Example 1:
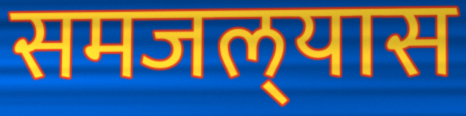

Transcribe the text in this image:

समजल्यास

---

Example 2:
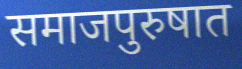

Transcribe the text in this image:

समाजपुरुषात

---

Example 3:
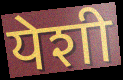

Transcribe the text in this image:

येशी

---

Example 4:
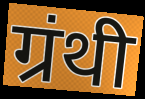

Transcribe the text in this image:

ग्रंथी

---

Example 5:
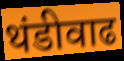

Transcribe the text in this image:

थंडीवाढ